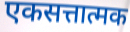
एकसत्तात्मक